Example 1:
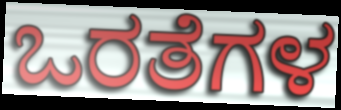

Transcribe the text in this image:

ಒರತೆಗಳ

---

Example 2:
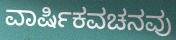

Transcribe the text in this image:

ವಾರ್ಷಿಕವಚನವು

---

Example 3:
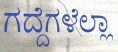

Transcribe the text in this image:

ಗದ್ದೆಗಳೆಲ್ಲಾ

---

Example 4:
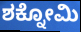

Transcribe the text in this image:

ಶಕ್ನೋಮಿ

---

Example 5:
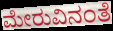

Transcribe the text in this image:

ಮೇರುವಿನಂತೆ